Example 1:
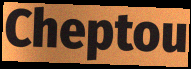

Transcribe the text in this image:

Cheptou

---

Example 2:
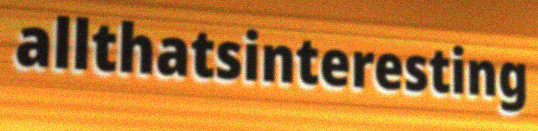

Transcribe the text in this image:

allthatsinteresting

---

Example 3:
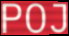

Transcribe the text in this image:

POJ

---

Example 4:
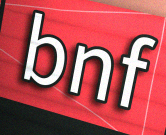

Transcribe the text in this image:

bnf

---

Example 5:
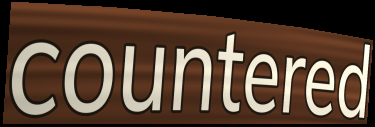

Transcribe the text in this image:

countered